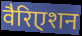
वैरिएशन